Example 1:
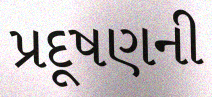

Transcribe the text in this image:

પ્રદૂષણની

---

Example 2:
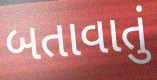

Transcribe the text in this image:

બતાવાતું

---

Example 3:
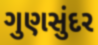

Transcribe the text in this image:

ગુણસુંદર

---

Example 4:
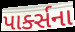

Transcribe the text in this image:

પાર્ક્સના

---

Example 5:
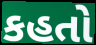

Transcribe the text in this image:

કહતો